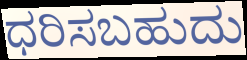
ಧರಿಸಬಹುದು